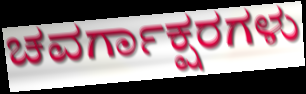
ಚವರ್ಗಾಕ್ಷರಗಳು